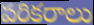
పరికరాలు